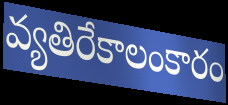
వ్యతిరేకాలంకారం